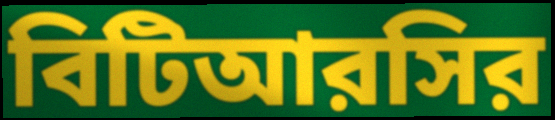
বিটিআরসির